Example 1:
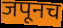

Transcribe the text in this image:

जपूनच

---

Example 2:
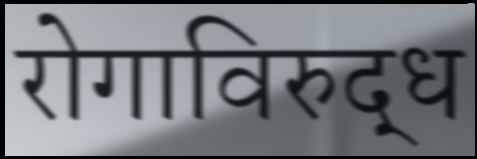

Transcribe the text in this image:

रोगाविरुद्ध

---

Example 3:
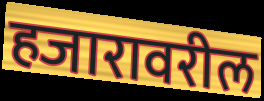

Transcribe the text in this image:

हजारावरील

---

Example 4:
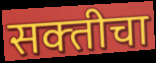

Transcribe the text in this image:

सक्‍तीचा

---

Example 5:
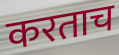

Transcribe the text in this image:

करताच